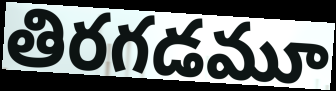
తిరగడమూ